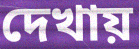
দেখায়